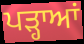
ਪੜ੍ਹਾਆਂ